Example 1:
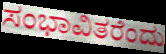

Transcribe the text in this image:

ಸಂಭಾವಿತರೆಂದು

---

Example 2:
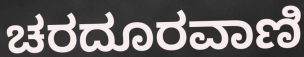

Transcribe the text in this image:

ಚರದೂರವಾಣಿ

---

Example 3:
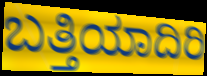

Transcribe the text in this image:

ಬತ್ತಿಯಾದಿರಿ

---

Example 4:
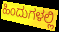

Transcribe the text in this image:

ಹಿಂದುಗಳಲ್ಲಿ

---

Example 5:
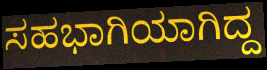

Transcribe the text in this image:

ಸಹಭಾಗಿಯಾಗಿದ್ದ